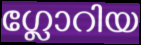
ഗ്ലോറിയ